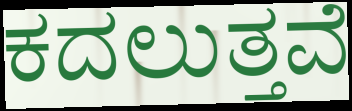
ಕದಲುತ್ತವೆ